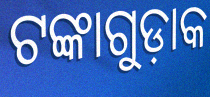
ଟଙ୍କାଗୁଡ଼ାକ